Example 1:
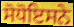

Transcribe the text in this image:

ਸੋਧੋਇਸਨੇ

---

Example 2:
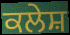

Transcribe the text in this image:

ਕਲੇਸ਼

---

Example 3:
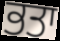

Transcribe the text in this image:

ਭਤਾ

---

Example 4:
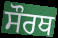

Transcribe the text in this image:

ਸੌਰਥ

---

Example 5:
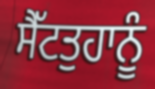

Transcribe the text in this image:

ਸੈੱਟਤੁਹਾਨੂੰ